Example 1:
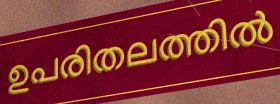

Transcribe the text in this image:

ഉപരിതലത്തിൽ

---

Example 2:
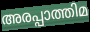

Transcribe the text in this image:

അരപ്പാത്തിമ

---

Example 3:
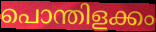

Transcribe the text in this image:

പൊന്തിളക്കം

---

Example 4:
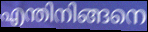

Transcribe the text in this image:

എന്തിനിങ്ങനെ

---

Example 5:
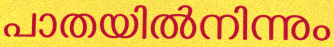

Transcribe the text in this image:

പാതയിൽനിന്നും